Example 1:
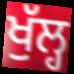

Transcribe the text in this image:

ਖੁੱਲ੍ਹ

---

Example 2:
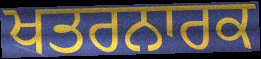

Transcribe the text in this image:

ਖਤਰਨਾਰਕ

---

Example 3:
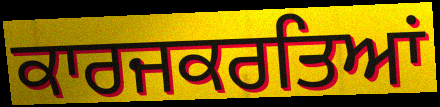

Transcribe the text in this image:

ਕਾਰਜਕਰਤਿਆਂ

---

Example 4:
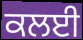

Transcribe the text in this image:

ਕਲਈ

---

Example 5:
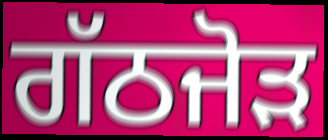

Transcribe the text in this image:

ਗੱਠਜੋੜ